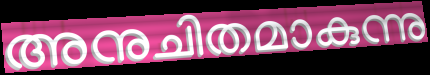
അനുചിതമാകുന്നു